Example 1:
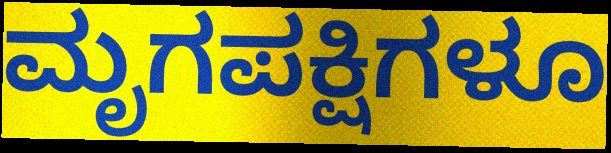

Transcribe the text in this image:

ಮೃಗಪಕ್ಷಿಗಳೂ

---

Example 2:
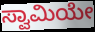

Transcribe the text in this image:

ಸ್ವಾಮಿಯೇ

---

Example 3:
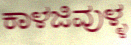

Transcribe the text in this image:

ಕಾಳಜಿವುಳ್ಳ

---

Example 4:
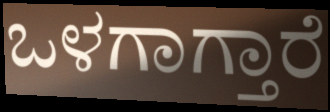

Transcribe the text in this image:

ಒಳಗಾಗ್ತಾರೆ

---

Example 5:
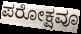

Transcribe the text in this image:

ಪರೋಕ್ಷವೂ